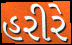
હરીરે